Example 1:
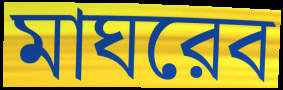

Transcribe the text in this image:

মাঘরেব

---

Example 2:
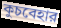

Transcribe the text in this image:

কুচবেহার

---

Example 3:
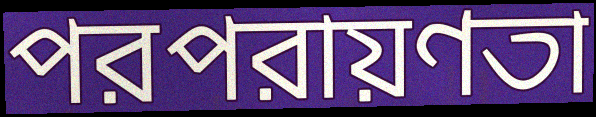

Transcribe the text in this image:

পরপরায়ণতা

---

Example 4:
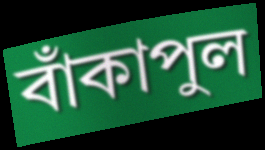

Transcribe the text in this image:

বাঁকাপুল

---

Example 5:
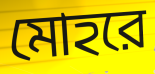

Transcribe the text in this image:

মোহরে